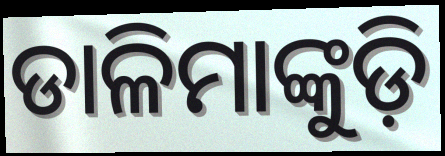
ଡାଳିମାଙ୍କୁଡ଼ି